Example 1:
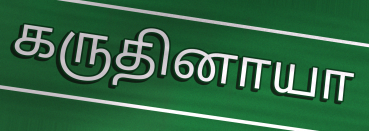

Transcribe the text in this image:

கருதினாயா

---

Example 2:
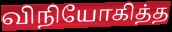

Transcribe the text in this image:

விநியோகித்த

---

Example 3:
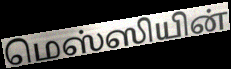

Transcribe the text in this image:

மெஸ்ஸியின்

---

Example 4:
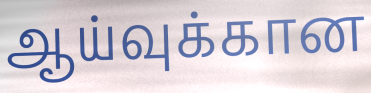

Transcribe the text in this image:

ஆய்வுக்கான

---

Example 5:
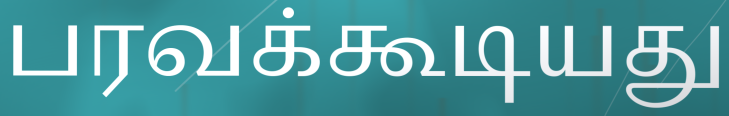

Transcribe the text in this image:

பரவக்கூடியது